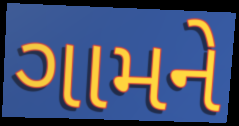
ગામને